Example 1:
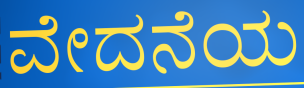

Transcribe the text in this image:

ವೇದನೆಯ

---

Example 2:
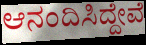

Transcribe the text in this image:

ಆನಂದಿಸಿದ್ದೇವೆ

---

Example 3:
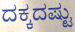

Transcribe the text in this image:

ದಕ್ಕದಷ್ಟು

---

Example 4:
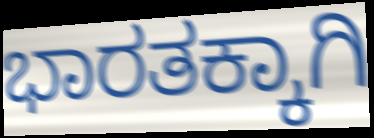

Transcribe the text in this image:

ಭಾರತಕ್ಕಾಗಿ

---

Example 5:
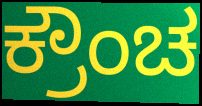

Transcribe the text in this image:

ಕ್ರೌಂಚ